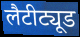
लैटीट्यूड